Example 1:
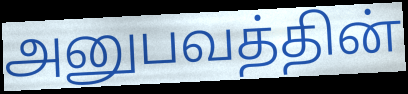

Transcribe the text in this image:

அனுபவத்தின்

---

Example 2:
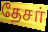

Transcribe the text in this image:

தேசர்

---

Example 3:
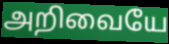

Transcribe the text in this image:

அறிவையே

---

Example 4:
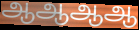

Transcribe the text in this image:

ஆஆஆஆ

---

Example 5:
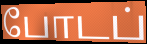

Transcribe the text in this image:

போடப்